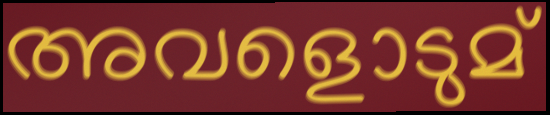
അവളൊടുമ്